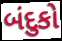
બંદુકો